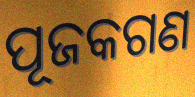
ପୂଜକଗଣ